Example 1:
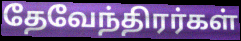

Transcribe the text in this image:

தேவேந்திரர்கள்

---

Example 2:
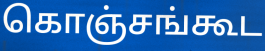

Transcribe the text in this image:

கொஞ்சங்கூட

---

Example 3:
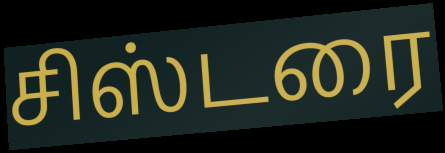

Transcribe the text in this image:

சிஸ்டரை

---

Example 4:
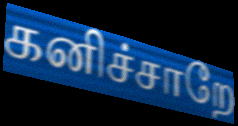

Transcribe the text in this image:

கனிச்சாறே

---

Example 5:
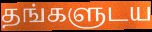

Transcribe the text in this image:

தங்களுடய